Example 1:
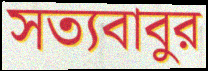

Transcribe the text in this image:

সত্যবাবুর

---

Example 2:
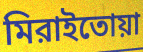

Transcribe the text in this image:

মিরাইতোয়া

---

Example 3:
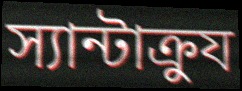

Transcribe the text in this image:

স্যান্টাক্রুয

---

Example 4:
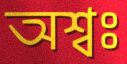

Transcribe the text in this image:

অশ্বঃ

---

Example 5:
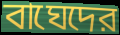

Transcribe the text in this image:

বাঘেদের